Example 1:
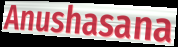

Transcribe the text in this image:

Anushasana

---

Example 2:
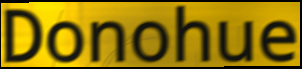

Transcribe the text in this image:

Donohue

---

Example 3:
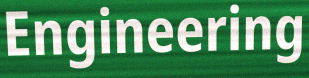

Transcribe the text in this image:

Engineering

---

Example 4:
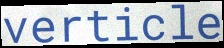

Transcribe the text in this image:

verticle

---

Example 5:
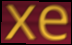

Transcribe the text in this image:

xe